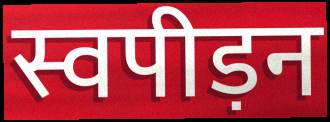
स्वपीड़न